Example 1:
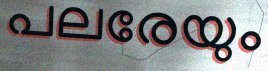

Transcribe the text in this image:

പലരേയും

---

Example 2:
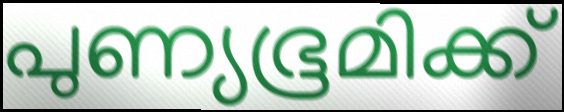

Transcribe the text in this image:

പുണ്യഭൂമിക്ക്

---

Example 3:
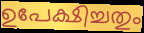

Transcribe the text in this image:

ഉപേക്ഷിച്ചതും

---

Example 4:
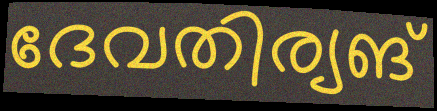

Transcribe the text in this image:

ദേവതിര്യങ്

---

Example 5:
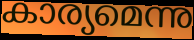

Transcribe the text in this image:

കാര്യമെന്നു